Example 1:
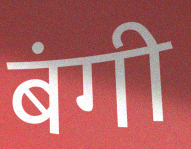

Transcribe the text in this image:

बंगी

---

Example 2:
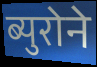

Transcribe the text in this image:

ब्युरोने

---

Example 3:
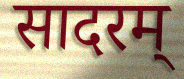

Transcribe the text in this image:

सादरम्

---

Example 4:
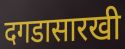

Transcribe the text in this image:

दगडासारखी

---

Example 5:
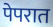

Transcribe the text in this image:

पेपरात